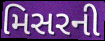
મિસરની